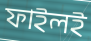
ফাইলই